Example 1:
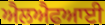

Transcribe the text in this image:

ਐਲਐਫਆਈ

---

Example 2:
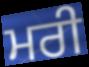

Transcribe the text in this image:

ਮਰੀ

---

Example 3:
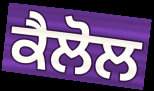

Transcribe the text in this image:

ਕੈਲੋਲ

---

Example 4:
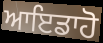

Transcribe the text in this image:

ਆਇਡਾਹੋ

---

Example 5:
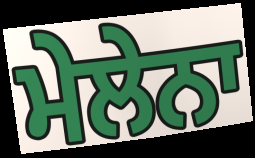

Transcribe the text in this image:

ਮੇਲੇਨਾ